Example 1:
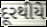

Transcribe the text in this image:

દૂરથીયે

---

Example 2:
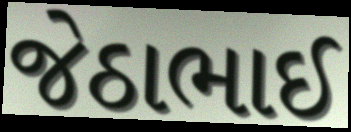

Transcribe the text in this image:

જેઠાભાઈ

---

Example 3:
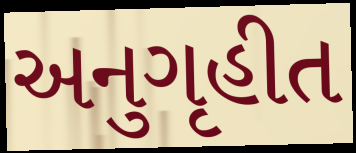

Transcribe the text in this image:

અનુગૃહીત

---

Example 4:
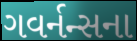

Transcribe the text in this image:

ગવર્નન્સના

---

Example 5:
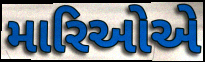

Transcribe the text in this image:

મારિઓએ